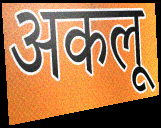
अकलू